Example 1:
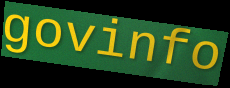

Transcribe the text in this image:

govinfo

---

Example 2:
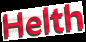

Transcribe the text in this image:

Helth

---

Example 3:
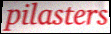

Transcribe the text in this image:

pilasters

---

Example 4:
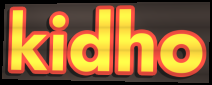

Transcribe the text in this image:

kidho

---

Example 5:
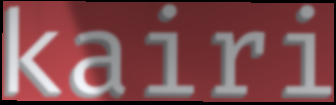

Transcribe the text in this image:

kairi